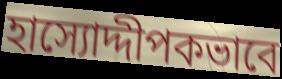
হাস্যোদ্দীপকভাবে